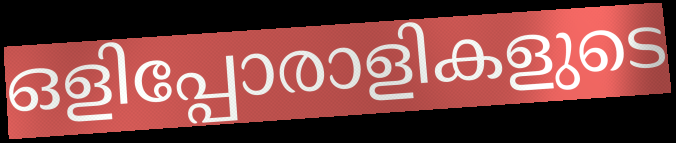
ഒളിപ്പോരാളികളുടെ